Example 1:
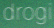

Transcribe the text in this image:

drogi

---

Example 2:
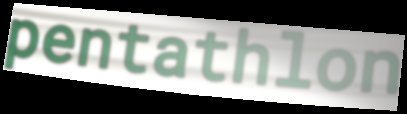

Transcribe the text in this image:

pentathlon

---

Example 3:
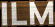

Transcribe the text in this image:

ILM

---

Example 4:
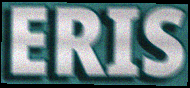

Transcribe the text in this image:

ERIS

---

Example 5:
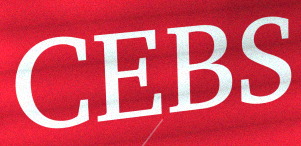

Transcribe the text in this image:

CEBS